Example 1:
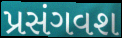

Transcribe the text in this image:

પ્રસંગવશ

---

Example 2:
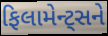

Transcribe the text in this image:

ફિલામેન્ટ્સને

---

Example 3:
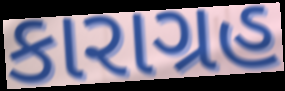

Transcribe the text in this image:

કારાગ્રહ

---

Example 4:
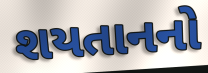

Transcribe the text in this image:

શયતાનનો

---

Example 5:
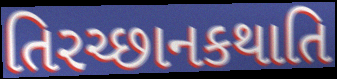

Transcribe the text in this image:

તિરચ્છાનકથાતિ